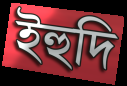
ইহুদি